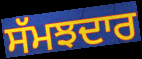
ਸੱਮਝਦਾਰ